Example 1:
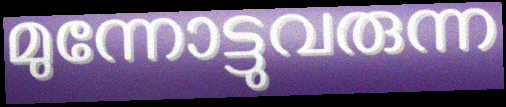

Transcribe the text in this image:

മുന്നോട്ടുവരുന്ന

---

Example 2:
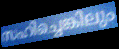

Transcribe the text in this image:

സഹിച്ചെങ്കിലും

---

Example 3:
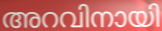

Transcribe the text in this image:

അറവിനായി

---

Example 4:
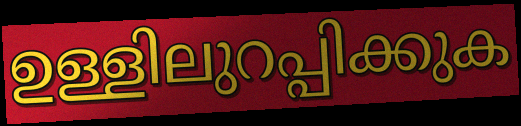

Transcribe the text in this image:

ഉള്ളിലുറപ്പിക്കുക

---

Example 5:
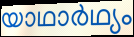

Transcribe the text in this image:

യാഥാർഥ്യം